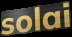
solai